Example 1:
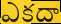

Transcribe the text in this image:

ఎకదా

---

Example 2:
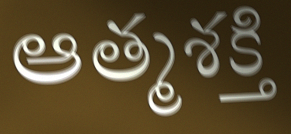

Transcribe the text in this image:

ఆత్మశక్తి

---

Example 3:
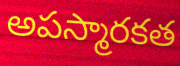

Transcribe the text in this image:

అపస్మారకత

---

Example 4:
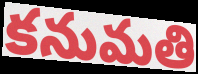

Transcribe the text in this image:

కనుమతి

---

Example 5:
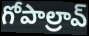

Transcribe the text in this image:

గోపాల్రావ్